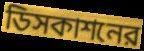
ডিসকাশনের